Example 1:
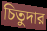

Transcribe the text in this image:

চিতুদার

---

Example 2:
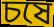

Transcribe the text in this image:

চষে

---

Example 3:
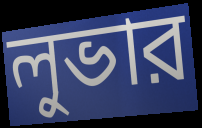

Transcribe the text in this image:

লুভার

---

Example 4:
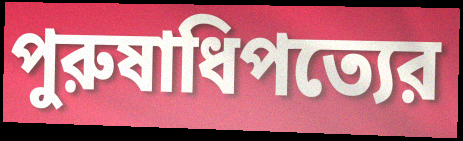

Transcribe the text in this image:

পুরুষাধিপত্যের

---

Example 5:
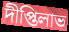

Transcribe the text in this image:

দীপ্তিলাভ